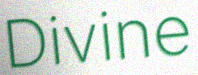
Divine